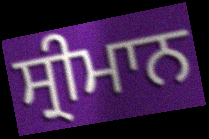
ਸ੍ਰੀਮਾਨ